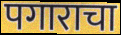
पगाराचा